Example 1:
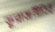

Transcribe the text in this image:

ভূরাজনীতিই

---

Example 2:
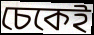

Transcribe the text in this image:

চেকেই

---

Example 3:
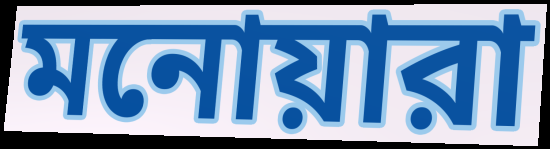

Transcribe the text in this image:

মনোয়ারা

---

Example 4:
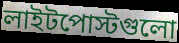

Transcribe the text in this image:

লাইটপোস্টগুলো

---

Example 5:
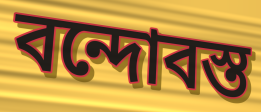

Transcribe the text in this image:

বন্দোবস্ত